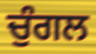
ਚੁੰਗਲ